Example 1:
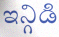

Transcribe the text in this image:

ఇన్గిడి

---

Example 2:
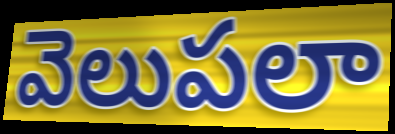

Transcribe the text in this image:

వెలుపలా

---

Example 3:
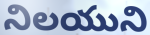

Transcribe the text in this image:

నిలయుని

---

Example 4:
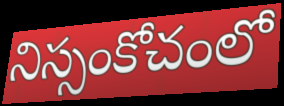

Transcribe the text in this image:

నిస్సంకోచంలో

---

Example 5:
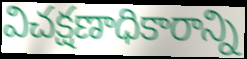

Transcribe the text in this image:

విచక్షణాధికారాన్ని